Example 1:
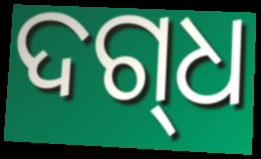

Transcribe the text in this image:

ଦଗ୍‍ଧ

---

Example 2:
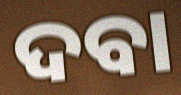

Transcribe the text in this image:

ଦବା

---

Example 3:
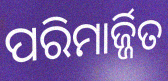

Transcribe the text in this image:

ପରିମାର୍ଜ୍ଜିତ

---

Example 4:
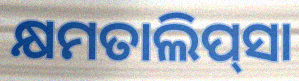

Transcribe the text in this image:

କ୍ଷମତାଲିପ୍‍ସା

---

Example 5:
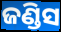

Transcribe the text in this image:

ଜଣ୍ଡିସ